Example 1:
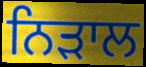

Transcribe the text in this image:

ਨਿੜਾਲ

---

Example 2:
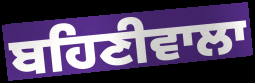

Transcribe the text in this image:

ਬਹਿਣੀਵਾਲਾ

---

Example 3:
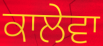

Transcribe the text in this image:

ਕਾਲੇਵਾ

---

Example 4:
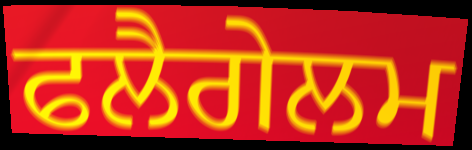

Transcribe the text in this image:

ਫਲੈਗੇਲਮ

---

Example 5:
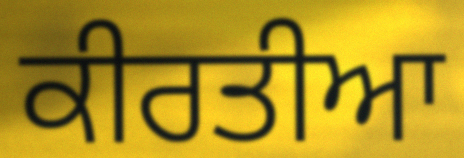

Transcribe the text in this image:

ਕੀਰਤੀਆ